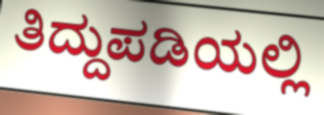
ತಿದ್ದುಪಡಿಯಲ್ಲಿ